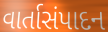
વાર્તાસંપાદન